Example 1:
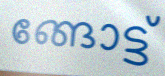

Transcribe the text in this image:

ങ്ങോട്ട്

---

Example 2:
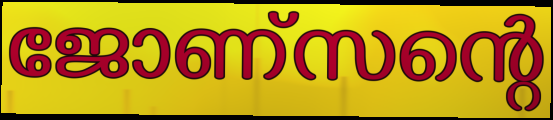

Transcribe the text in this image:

ജോണ്സന്റെ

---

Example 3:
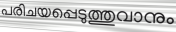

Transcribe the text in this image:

പരിചയപ്പെടുത്തുവാനും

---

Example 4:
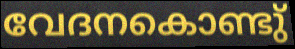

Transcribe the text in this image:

വേദനകൊണ്ടു്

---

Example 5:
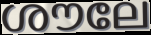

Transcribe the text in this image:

ശൗലേ